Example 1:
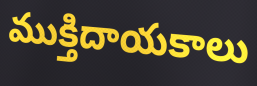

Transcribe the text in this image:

ముక్తిదాయకాలు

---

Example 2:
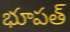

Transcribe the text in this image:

భూపత్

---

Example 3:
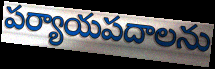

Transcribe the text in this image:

పర్యాయపదాలను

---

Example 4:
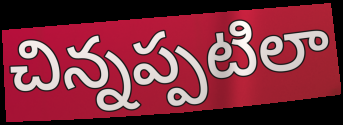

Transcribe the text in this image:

చిన్నప్పటిలా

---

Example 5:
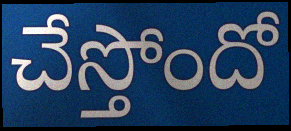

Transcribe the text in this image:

చేస్తోందో